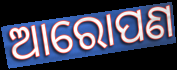
ଆରୋପଣ